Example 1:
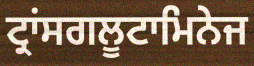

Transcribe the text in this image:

ਟ੍ਰਾਂਸਗਲੂਟਾਮਿਨੇਜ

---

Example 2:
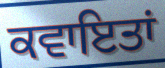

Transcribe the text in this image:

ਕਵਾਇਤਾਂ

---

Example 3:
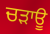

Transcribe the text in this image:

ਚੜਾਊ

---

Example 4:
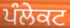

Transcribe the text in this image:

ਪੰਲੇਕਟ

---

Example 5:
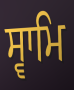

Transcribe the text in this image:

ਸ੍ਵਾਮਿ